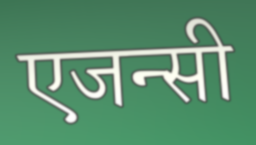
एजन्सी